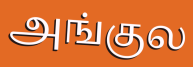
அங்குல